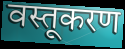
वस्तूकरण